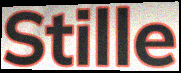
Stille